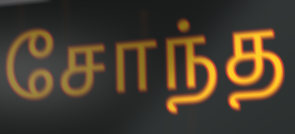
சோந்த